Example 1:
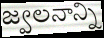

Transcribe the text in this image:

జ్వలనాన్ని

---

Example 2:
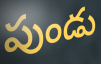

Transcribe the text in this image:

పుండు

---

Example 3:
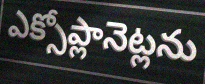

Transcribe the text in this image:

ఎక్సోప్లానెట్లను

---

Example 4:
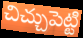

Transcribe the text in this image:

చిచ్చుపెట్టి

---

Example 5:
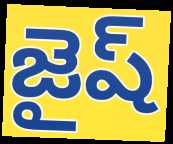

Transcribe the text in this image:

జైష్